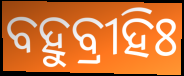
ବହୁବ୍ରୀହିଃ